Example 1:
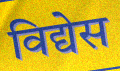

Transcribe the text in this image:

विद्येस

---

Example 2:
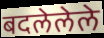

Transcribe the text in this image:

बदलेलेले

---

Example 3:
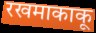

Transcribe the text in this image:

रखमाकाकू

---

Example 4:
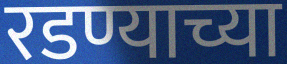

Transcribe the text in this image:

रडण्याच्या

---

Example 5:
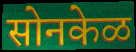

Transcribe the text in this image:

सोनकेळ